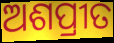
ଅଶପ୍ରୀତ